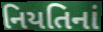
નિયતિનાં